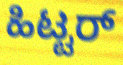
ಹಿಟ್ಟರ್